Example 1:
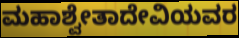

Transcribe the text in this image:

ಮಹಾಶ್ವೇತಾದೇವಿಯವರ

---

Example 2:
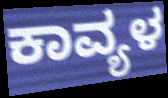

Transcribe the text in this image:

ಕಾವ್ಯಳ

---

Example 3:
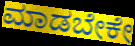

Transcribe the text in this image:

ಮಾಡಬೇಕೇ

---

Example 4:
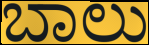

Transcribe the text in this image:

ಬಾಲು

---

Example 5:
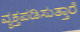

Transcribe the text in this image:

ವ್ಯಕ್ತಪಡಿಸುತ್ತಾರೆ